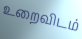
உறைவிடம்